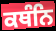
ਕਥੰਨਿ